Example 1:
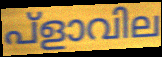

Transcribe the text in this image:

പ്ളാവില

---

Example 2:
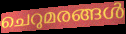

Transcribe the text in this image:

ചെറുമരങ്ങൾ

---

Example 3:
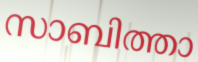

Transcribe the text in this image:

സാബിത്താ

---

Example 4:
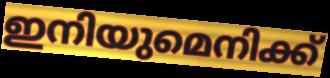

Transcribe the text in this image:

ഇനിയുമെനിക്ക്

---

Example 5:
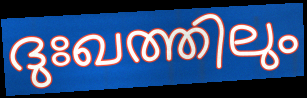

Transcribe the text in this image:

ദുഃഖത്തിലും